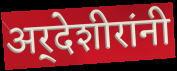
अर्देशीरांनी